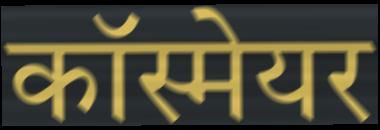
कॉस्मेयर